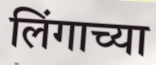
लिंगाच्या